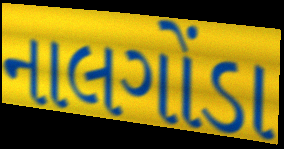
નાલગોંડા